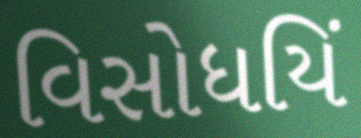
વિસોધયિં